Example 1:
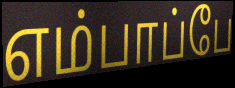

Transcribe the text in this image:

எம்பாப்பே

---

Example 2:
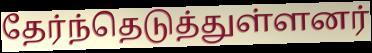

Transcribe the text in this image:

தேர்ந்தெடுத்துள்ளனர்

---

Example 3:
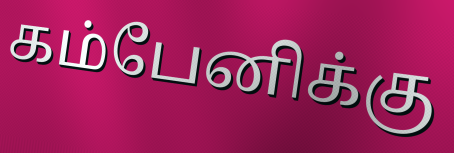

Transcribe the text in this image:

கம்பேனிக்கு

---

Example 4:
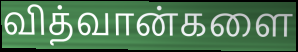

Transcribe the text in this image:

வித்வான்களை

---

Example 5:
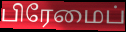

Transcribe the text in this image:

பிரேமைப்